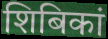
शिबिकां